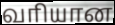
வரியான